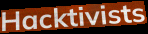
Hacktivists